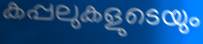
കപ്പലുകളുടെയും